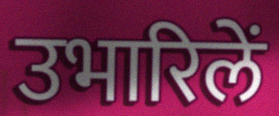
उभारिलें